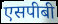
एसपीबी